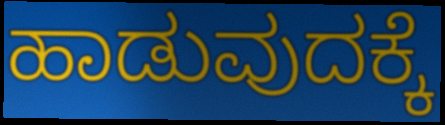
ಹಾಡುವುದಕ್ಕೆ